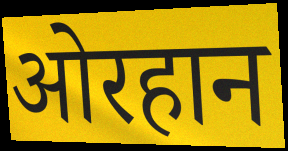
ओरहान